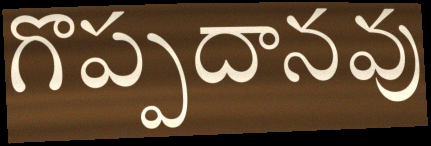
గొప్పదానవు